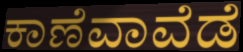
ಕಾಣೆವಾವೆಡೆ